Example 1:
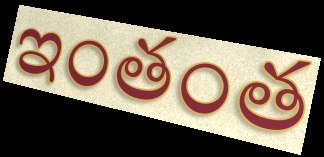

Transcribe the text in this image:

ఇంతంత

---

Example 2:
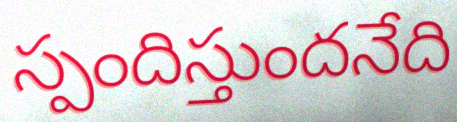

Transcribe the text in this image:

స్పందిస్తుందనేది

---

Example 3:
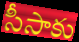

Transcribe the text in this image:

సీసాకు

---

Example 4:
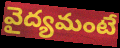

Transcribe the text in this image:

వైద్యమంటే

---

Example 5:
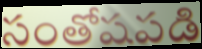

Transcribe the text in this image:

సంతోషపడి